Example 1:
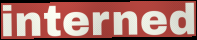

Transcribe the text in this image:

interned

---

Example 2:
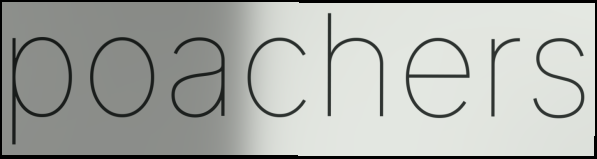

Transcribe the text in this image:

poachers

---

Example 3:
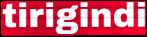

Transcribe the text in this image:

tirigindi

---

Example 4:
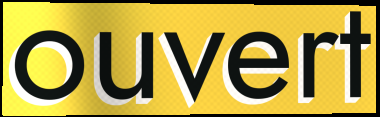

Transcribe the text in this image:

ouvert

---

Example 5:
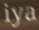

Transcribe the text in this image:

iya